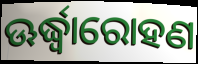
ଊର୍ଦ୍ଧ୍ୱାରୋହଣ